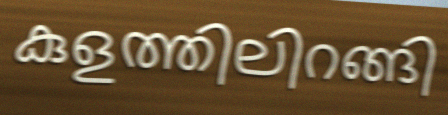
കുളത്തിലിറങ്ങി